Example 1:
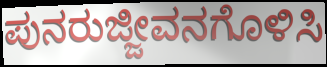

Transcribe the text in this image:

ಪುನರುಜ್ಜೀವನಗೊಳಿಸಿ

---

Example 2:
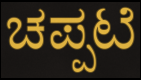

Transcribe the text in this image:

ಚಪ್ಪಟೆ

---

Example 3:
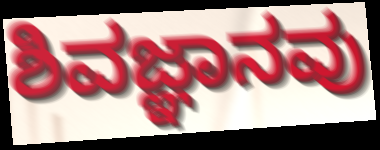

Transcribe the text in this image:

ಶಿವಜ್ಞಾನವು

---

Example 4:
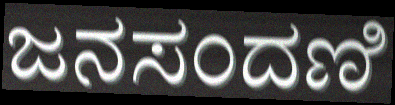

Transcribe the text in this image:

ಜನಸಂದಣಿ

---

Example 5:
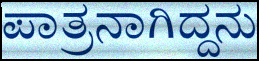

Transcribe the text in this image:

ಪಾತ್ರನಾಗಿದ್ದನು